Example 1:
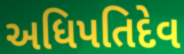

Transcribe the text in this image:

અધિપતિદેવ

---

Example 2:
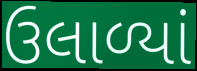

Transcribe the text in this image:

ઉલાળ્યાં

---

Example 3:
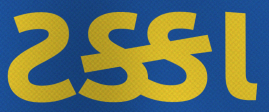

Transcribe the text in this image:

ટક્કા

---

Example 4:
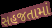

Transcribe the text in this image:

સહજતામાં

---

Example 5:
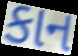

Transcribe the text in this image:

કાન